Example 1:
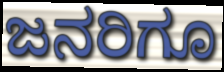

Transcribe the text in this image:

ಜನರಿಗೂ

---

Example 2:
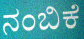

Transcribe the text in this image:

ನಂಬಿಕೆ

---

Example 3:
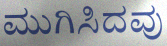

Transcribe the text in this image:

ಮುಗಿಸಿದವು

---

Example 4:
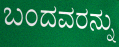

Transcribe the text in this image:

ಬಂದವರನ್ನು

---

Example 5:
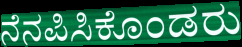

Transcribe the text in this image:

ನೆನಪಿಸಿಕೊಂಡರು